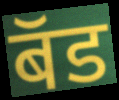
बॅड